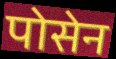
पोसेन